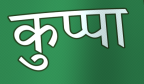
कुप्पा